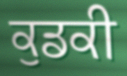
ਕੁਡਕੀ